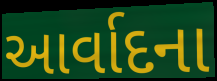
આર્વાદના